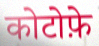
कोटोफ़े